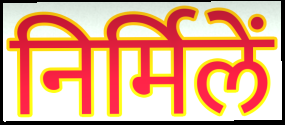
निर्मिलें